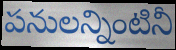
పనులన్నింటినీ